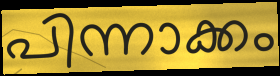
പിന്നാക്കം